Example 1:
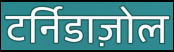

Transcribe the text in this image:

टर्निडाज़ोल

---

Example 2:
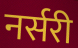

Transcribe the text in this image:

नर्सरी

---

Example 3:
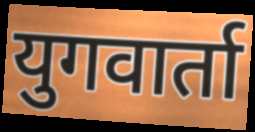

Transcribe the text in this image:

युगवार्ता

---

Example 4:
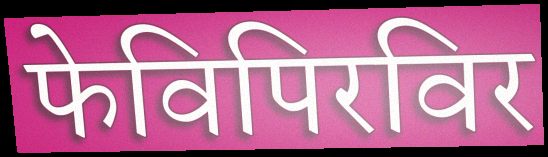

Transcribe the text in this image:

फेविपिरविर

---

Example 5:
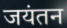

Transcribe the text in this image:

जयंतन